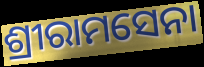
ଶ୍ରୀରାମସେନା